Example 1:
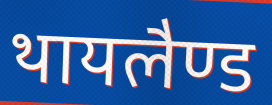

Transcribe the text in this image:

थायलैण्ड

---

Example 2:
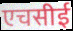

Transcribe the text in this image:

एचसीई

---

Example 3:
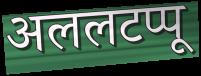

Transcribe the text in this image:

अललटप्पू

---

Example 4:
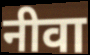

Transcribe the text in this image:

नीवा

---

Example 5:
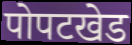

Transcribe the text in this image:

पोपटखेड